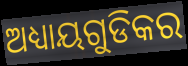
ଅଧ୍ୟାୟଗୁଡିକର